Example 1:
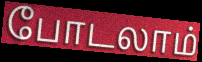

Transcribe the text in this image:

போடலாம்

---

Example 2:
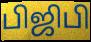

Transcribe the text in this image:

பிஜிபி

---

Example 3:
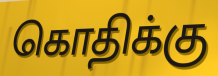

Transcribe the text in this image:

கொதிக்கு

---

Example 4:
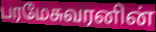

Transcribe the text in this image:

பரமேசுவரனின்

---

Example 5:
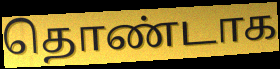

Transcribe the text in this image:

தொண்டாக